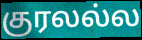
குரலல்ல